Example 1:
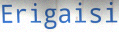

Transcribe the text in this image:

Erigaisi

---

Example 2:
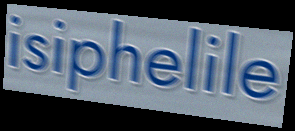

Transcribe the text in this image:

isiphelile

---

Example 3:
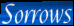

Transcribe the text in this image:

Sorrows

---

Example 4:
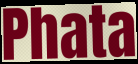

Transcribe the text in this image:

Phata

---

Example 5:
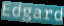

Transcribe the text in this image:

Edgard